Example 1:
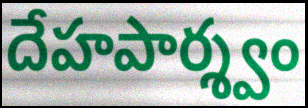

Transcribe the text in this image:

దేహపార్శ్వం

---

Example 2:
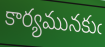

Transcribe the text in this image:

కార్యమునకుఁ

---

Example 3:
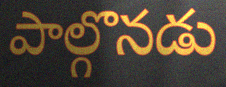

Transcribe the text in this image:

పాల్గొనడు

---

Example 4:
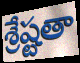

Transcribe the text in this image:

శ్రేష్టతా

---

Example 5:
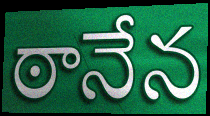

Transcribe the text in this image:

ఠానేన